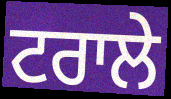
ਟਰਾਲੇ